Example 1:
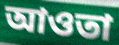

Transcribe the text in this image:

আওতা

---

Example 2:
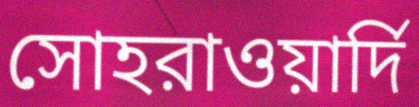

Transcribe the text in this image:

সোহরাওয়ার্দি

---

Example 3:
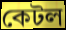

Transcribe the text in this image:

কেটল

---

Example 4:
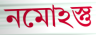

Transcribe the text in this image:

নমোঽস্তু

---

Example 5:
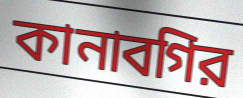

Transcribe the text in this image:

কানাবগির